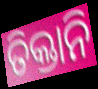
ତିକ୍ତାନି